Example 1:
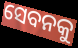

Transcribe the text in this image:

ସେବନକୁ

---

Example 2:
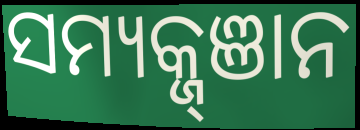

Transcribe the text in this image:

ସମ୍ୟକ୍ଜ୍ଞାନ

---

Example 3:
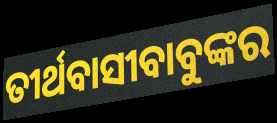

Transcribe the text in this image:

ତୀର୍ଥବାସୀବାବୁଙ୍କର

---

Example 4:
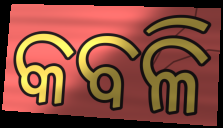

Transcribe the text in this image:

କବଳି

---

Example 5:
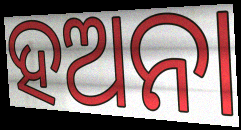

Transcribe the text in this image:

ହଅନା